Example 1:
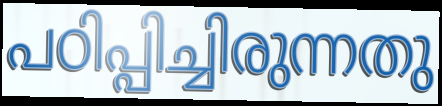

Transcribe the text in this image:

പഠിപ്പിച്ചിരുന്നതു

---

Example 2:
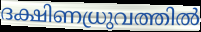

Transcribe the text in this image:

ദക്ഷിണധ്രുവത്തിൽ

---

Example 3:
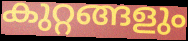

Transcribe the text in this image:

കുറ്റങ്ങളും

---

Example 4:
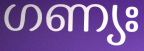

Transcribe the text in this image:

ഗണ്യഃ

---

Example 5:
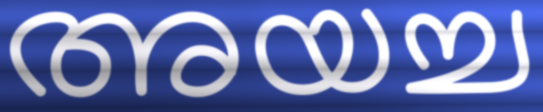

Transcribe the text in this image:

അയച്ച